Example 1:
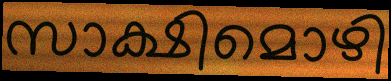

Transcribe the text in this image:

സാക്ഷിമൊഴി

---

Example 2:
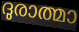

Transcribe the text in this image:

ദുരാത്മാ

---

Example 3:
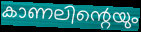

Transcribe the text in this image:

കാണലിന്റെയും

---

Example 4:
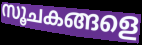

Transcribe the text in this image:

സൂചകങ്ങളെ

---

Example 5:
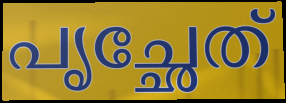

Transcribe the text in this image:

പൃച്ഛേത്